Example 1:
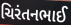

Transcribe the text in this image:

ચિરંતનભાઈ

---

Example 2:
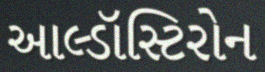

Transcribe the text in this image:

આલ્ડૉસ્ટિરોન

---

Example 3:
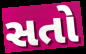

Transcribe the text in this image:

સતો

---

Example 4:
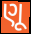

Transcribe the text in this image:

ણૂ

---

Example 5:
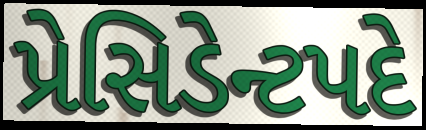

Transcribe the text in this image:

પ્રેસિડેન્ટપદે